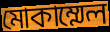
মোকাম্মেল